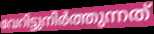
വേറിട്ടുനിർത്തുന്നത്